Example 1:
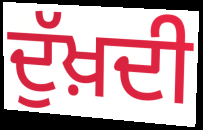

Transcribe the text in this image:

ਦੁੱਖ਼ਦੀ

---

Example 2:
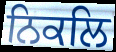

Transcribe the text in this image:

ਨਿਕਲਿ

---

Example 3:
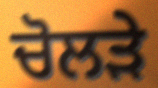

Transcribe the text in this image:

ਚੋਲੜੇ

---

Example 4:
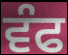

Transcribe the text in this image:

ਵੰਫ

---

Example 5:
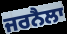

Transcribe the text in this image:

ਜਰਨੈਲਾ